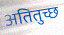
अतितुच्छ